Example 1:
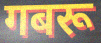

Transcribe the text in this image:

गबरू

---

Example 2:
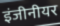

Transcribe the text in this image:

इंजीनीयर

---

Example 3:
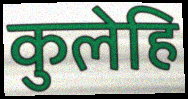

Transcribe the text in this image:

कुलेहि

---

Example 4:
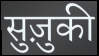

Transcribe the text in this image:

सुज़ुकी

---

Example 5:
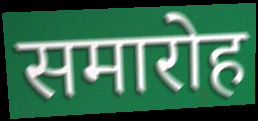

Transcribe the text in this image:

समारोह